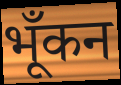
भूँकन